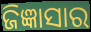
ଜିଜ୍ଞାସାର